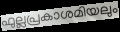
ഫുല്ലപ്രകാശമിയലും